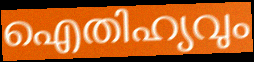
ഐതിഹ്യവും